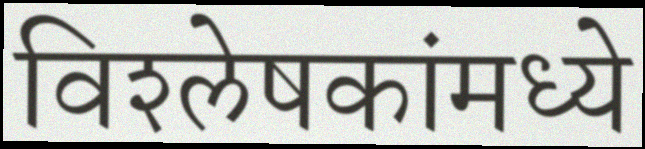
विश्लेषकांमध्ये